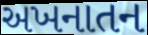
અખનાતન